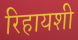
रिहायशी